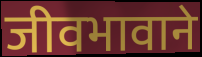
जीवभावाने